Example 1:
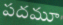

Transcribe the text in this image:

పదమూ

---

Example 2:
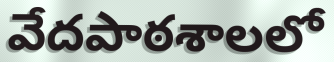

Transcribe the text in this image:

వేదపాఠశాలలో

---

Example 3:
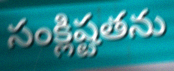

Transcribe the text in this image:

సంక్లిష్టతను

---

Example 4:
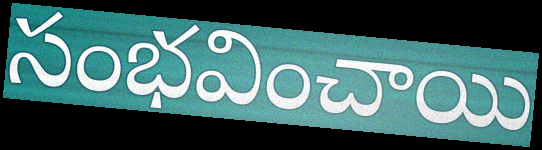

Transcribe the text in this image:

సంభవించాయి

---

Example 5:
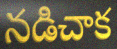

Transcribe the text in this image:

నడిచాక